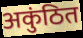
अकुंठित